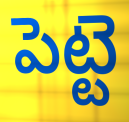
పెట్టె